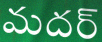
మదర్